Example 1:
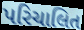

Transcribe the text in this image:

પરિચાલિત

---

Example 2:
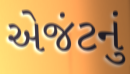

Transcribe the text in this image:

એજંટનું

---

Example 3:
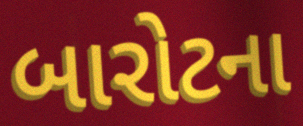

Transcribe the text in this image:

બારોટના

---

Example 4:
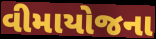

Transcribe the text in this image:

વીમાયોજના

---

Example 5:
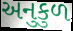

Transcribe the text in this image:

અનુકુળ